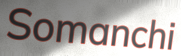
Somanchi